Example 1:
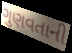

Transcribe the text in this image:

ગુણવતાની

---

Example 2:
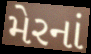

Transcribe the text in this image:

મેરનાં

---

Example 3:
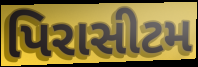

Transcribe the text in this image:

પિરાસીટમ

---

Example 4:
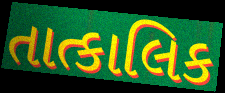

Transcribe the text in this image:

તાત્કાલિક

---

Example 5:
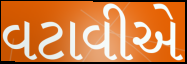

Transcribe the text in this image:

વટાવીએ